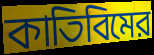
কাতিবিমের